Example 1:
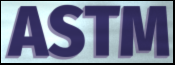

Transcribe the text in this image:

ASTM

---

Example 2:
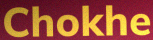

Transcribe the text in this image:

Chokhe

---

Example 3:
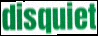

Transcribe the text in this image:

disquiet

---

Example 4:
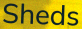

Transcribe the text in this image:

Sheds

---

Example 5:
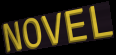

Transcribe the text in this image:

NOVEL